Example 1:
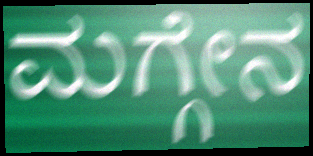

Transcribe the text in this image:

ಮಗ್ಗೇನ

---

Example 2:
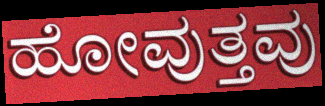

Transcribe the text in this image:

ಹೋವುತ್ತವು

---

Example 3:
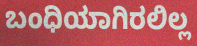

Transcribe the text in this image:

ಬಂಧಿಯಾಗಿರಲಿಲ್ಲ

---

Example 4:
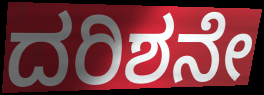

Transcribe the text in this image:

ದರಿಶನೇ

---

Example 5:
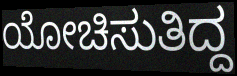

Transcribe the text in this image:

ಯೋಚಿಸುತಿದ್ದ